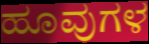
ಹೂವುಗಳ